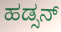
ಹಡ್ಸನ್